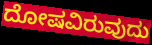
ದೋಷವಿರುವುದು